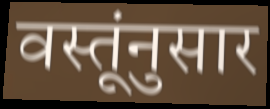
वस्तूंनुसार